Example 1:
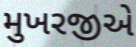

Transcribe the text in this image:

મુખરજીએ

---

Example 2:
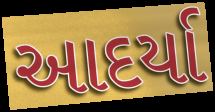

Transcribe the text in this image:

આદર્યા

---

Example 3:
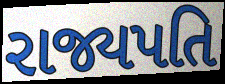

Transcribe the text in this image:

રાજ્યપતિ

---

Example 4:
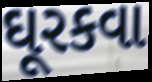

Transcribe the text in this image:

ઘૂરકવા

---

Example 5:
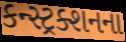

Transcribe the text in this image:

કન્સ્ટ્રક્શનના